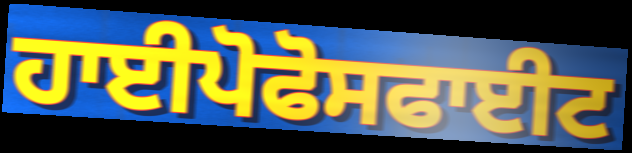
ਹਾਈਪੋਫੋਸਫਾਈਟ